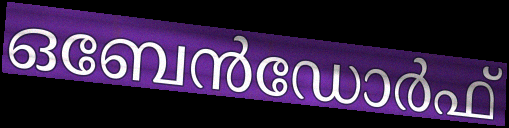
ഒബേൻഡോർഫ്